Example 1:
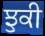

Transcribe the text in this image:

ਝੁਕੀ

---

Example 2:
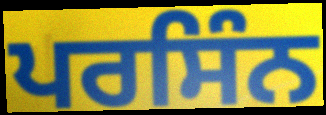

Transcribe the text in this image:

ਪਰਸਿੰਨ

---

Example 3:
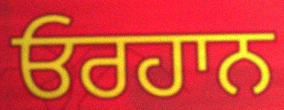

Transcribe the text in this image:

ਓਰਹਾਨ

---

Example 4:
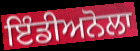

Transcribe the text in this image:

ਇੰਡੀਅਨੋਲਾ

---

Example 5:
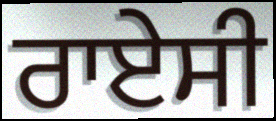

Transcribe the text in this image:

ਰਾਏਸੀ